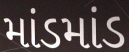
માંડમાંડ